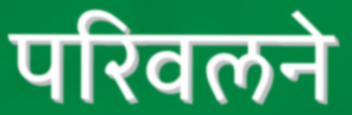
परिवलने